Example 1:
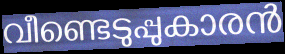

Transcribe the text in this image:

വീണ്ടെടുപ്പുകാരൻ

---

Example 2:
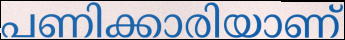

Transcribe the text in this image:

പണിക്കാരിയാണ്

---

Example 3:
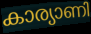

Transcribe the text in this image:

കാര്യാണി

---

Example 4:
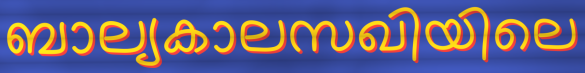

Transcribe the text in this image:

ബാല്യകാലസഖിയിലെ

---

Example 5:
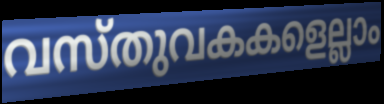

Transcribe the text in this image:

വസ്തുവകകളെല്ലാം